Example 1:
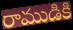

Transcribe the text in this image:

రాముడికి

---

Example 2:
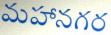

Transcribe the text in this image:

మహానగర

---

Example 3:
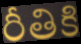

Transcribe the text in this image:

రీతికి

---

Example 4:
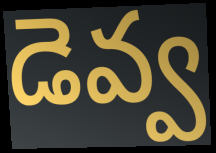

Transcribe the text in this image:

డెవ్వ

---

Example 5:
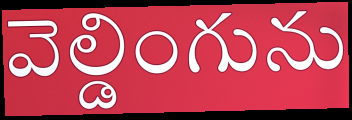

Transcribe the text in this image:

వెల్డింగును